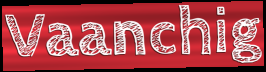
Vaanchig